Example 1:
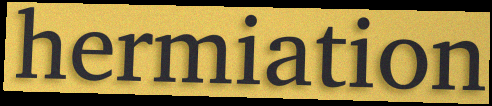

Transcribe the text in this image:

hermiation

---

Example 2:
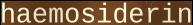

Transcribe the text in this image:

haemosiderin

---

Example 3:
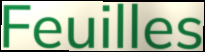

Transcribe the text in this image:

Feuilles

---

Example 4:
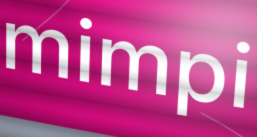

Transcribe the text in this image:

mimpi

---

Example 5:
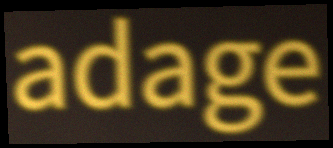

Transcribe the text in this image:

adage